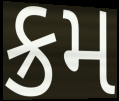
ક્રમ